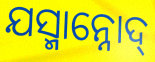
ଯସ୍ମାନ୍ନୋଦ୍